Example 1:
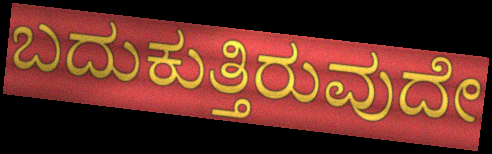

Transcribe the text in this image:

ಬದುಕುತ್ತಿರುವುದೇ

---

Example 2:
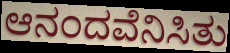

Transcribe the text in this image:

ಆನಂದವೆನಿಸಿತು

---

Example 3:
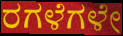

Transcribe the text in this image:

ರಗಳೆಗಳೇ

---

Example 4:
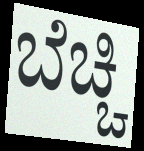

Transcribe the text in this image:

ಬೆಚ್ಚಿ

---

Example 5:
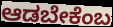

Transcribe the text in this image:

ಆಡಬೇಕೆಂಬ